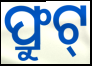
ଫ୍ରୁଟ୍